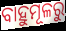
ବାହୁମୂଳରୁ